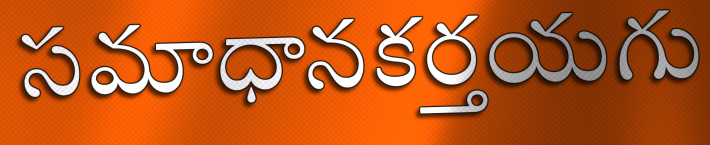
సమాధానకర్తయగు